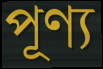
পূণ্য